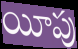
యీపు